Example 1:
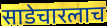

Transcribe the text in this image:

साडेचारलाच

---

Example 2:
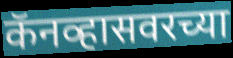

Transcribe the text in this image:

कॅनव्हासवरच्या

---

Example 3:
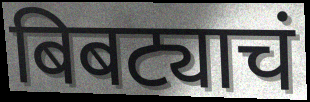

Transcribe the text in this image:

बिबट्याचं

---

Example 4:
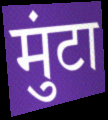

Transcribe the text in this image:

मुंटा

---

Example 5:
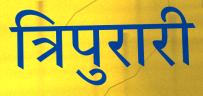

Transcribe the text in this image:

त्रिपुरारी